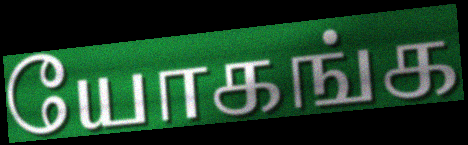
யோகங்க